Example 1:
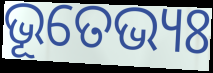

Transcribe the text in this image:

ଭୂତେଭ୍ୟଃ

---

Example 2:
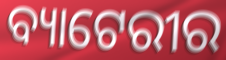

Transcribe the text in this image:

ବ୍ୟାଟେରୀର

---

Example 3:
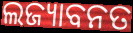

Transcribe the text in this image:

ଲଜ୍ୟାବନତ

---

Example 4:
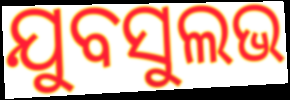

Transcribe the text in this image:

ଯୁବସୁଲଭ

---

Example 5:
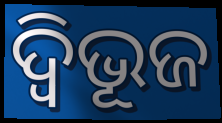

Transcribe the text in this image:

ଦ୍ବିଭୂଜ